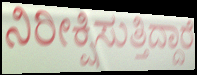
ನಿರೀಕ್ಷಿಸುತ್ತಿದ್ದಾರೆ